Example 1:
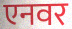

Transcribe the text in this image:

एनवर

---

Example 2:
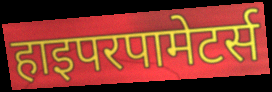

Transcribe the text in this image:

हाइपरपामेटर्स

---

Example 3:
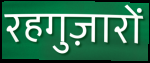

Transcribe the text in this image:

रहगुज़ारों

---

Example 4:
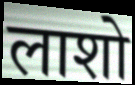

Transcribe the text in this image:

लाशो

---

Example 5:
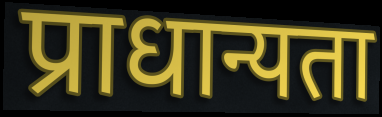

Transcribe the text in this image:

प्राधान्यता